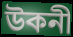
উকনী